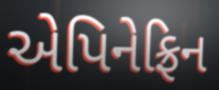
એપિનેફ્રિન